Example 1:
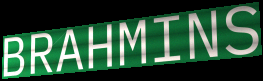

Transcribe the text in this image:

BRAHMINS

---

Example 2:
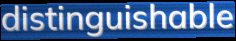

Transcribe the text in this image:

distinguishable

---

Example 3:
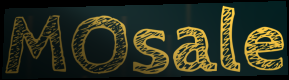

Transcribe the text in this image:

MOsale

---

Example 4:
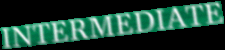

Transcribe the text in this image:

INTERMEDIATE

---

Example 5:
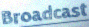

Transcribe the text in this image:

Broadcast